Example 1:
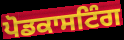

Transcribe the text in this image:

ਪੋਡਕਾਸਟਿੰਗ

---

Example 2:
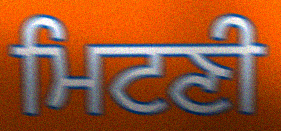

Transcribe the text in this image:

ਮਿਟਣੀ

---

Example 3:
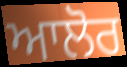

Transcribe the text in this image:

ਆਲੋਰ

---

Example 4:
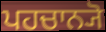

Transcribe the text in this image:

ਪਹਚਾਨ੍ਯੋ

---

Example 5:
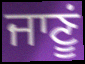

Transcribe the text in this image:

ਜਾਣੂਂ